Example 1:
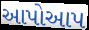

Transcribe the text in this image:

આપોઆપ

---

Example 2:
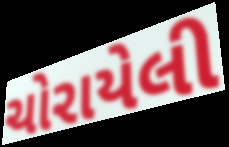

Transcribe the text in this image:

ચોરાયેલી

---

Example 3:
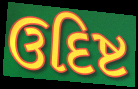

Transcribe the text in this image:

ઉદિષ્ટ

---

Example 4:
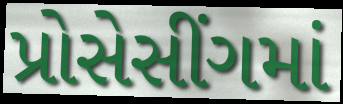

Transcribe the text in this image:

પ્રોસેસીંગમાં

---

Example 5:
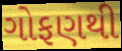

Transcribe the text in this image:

ગોફણથી